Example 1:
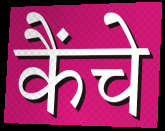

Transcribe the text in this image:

कैंचे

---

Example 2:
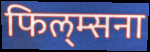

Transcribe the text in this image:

फिल्म्सना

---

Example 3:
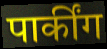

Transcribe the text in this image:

पार्कींग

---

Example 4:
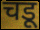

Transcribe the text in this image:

चडू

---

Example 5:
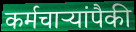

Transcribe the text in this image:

कर्मचाऱ्यांपैकी